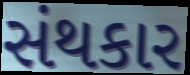
સંથકાર